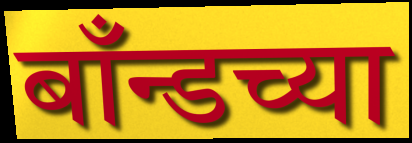
बाँन्डच्या